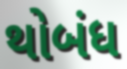
થોબંધ